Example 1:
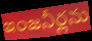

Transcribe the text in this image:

ఇంజనీర్లను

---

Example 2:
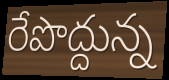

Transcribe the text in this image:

రేపొద్దున్న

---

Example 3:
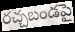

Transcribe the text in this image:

రచ్చబండపై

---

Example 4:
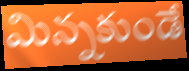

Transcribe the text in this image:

మిన్నకుండే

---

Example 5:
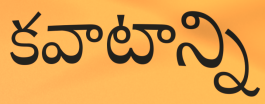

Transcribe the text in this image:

కవాటాన్ని